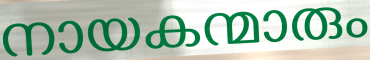
നായകന്മാരും